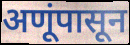
अणूंपासून